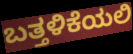
ಬತ್ತಳಿಕೆಯಲಿ